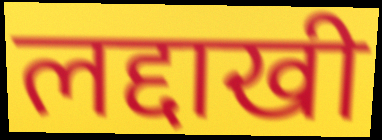
लद्दाखी